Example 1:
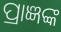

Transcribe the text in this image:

ପ୍ରାଜ୍ଞଙ୍କ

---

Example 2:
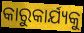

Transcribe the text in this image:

କାରୁକାର୍ଯ୍ୟକୁ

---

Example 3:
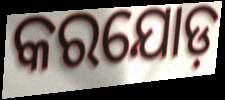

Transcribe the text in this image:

କରଯୋଡ଼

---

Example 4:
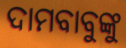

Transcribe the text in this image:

ଦାମବାବୁଙ୍କୁ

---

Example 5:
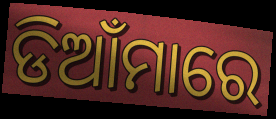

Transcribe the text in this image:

ଡିଆଁମାରେ